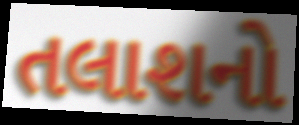
તલાશનો